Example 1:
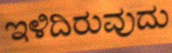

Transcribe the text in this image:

ಇಳಿದಿರುವುದು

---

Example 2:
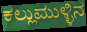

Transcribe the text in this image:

ಕಲ್ಲುಮುಳ್ಳಿನ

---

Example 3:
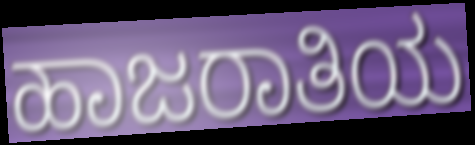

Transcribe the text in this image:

ಹಾಜರಾತಿಯ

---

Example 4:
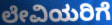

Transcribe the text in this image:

ಲೇವಿಯರಿಗೆ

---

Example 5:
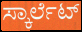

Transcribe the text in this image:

ಸ್ಕಾರ್ಲೆಟ್